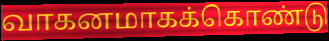
வாகனமாகக்கொண்டு